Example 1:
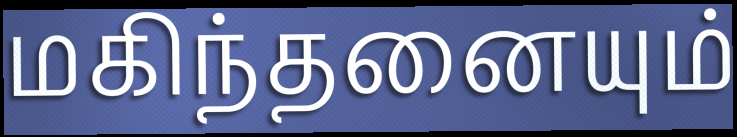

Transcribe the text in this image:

மகிந்தனையும்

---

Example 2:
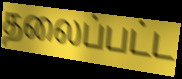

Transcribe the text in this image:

தலைப்பட்ட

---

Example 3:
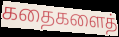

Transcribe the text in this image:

கதைகளைத்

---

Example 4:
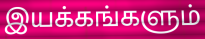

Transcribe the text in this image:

இயக்கங்களும்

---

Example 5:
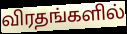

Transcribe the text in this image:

விரதங்களில்